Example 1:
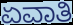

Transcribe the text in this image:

ಏವಾತಿ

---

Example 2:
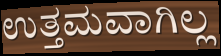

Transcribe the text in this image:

ಉತ್ತಮವಾಗಿಲ್ಲ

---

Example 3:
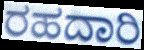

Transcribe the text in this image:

ರಹದಾರಿ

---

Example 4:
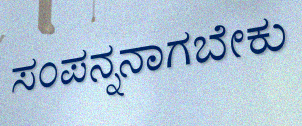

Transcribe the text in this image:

ಸಂಪನ್ನನಾಗಬೇಕು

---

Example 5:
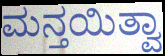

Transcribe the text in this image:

ಮನ್ತಯಿತ್ವಾ